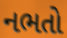
નભતો